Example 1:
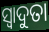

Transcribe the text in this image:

ସ୍ୱାଦୁତା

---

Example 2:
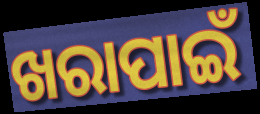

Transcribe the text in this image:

ଖରାପାଇଁ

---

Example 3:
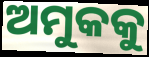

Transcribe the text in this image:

ଅମୁକକୁ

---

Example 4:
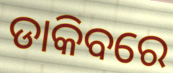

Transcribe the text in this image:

ଡାକିବରେ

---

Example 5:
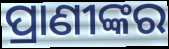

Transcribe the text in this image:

ପ୍ରାଣୀଙ୍କର